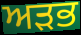
ਅੜਭ